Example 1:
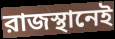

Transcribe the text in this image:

রাজস্থানেই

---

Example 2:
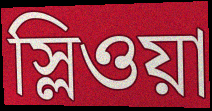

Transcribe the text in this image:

স্লিওয়া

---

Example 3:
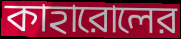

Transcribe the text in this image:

কাহারোলের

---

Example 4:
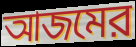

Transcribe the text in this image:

আজমের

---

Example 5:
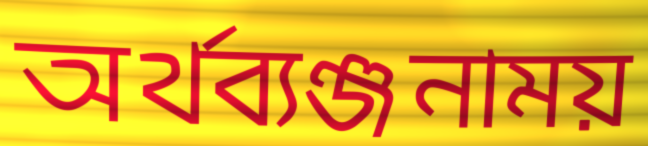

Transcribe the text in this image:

অর্থব্যঞ্জনাময়